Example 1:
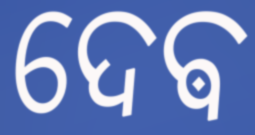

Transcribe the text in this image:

ଦେଵ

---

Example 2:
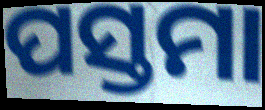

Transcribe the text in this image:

ପସ୍ତମା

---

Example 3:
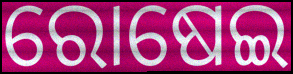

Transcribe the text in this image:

ରୋଷେଇ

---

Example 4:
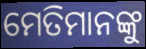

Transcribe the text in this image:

ମେତିମାନଙ୍କୁ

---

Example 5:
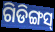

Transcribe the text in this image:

ଗିଡିଙ୍ଗସ୍